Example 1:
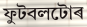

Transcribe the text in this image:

ফুটবলটোৰ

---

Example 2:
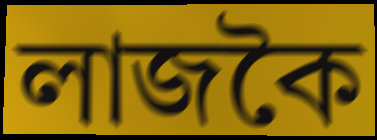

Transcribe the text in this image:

লাজকৈ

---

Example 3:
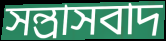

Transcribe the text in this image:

সন্ত্ৰাসবাদ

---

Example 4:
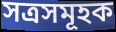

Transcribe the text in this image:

সত্ৰসমূহক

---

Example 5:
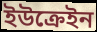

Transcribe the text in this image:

ইউক্ৰেইন